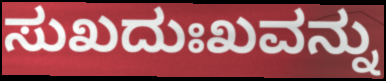
ಸುಖದುಃಖವನ್ನು